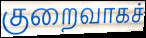
குறைவாகச்